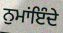
ਨੁਮਾਂਇੰਦੇ